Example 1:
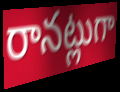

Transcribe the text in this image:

రానట్లుగా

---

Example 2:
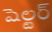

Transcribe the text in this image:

షెల్టర్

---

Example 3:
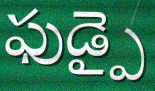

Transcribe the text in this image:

ఫుడ్పై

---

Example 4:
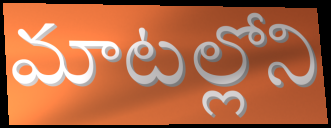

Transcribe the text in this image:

మాటల్లోని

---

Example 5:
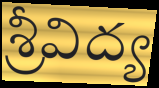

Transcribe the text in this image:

శ్రీవిద్య